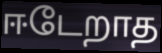
ஈடேறாத